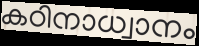
കഠിനാധ്വാനം